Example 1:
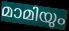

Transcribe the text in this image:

മാമിയും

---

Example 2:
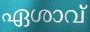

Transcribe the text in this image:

ഏശാവ്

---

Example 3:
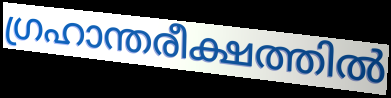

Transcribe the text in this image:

ഗ്രഹാന്തരീക്ഷത്തിൽ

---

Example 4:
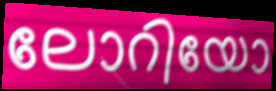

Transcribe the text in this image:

ലോറിയോ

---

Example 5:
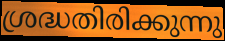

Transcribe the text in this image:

ശ്രദ്ധതിരിക്കുന്നു